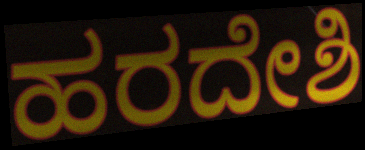
ಹರದೇಶಿ